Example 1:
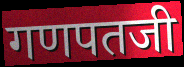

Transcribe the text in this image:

गणपतजी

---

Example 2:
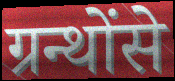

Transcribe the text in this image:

ग्रन्थोंसे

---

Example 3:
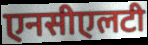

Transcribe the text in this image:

एनसीएलटी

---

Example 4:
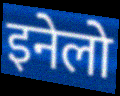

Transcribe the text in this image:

इनेलो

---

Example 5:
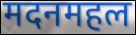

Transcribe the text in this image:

मदनमहल